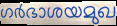
ഗർഭാശയമുഖ